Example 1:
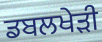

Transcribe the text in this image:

ਡਬਲਖੇੜੀ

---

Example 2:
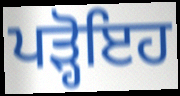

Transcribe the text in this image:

ਪੜ੍ਹੋਇਹ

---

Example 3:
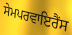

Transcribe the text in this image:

ਸੇਮਪਰਵਾਇਰੈਂਸ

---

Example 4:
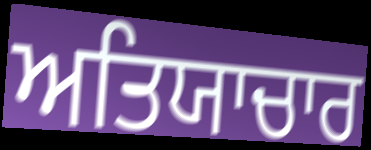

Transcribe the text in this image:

ਅਤਿਯਾਚਾਰ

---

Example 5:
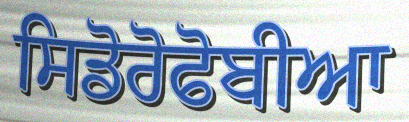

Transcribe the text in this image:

ਸਿਡੋਰੋਫੋਬੀਆ